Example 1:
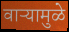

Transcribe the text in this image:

वाऱ्यामुळे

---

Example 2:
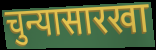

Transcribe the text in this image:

चुन्यासारखा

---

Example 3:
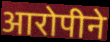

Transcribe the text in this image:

आरोपीने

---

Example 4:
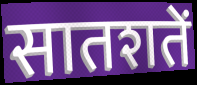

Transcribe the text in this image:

सातशतें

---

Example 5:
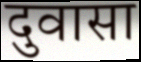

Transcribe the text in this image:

दुवासा